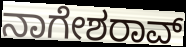
ನಾಗೇಶರಾವ್